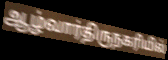
ஆழ்வார்திருநகரியில்